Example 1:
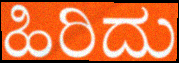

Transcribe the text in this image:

ಹಿರಿದು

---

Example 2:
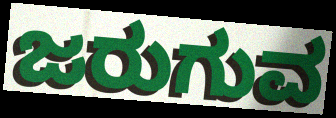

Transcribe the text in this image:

ಜರುಗುವ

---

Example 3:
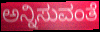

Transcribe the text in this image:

ಅನ್ನಿಸುವಂತೆ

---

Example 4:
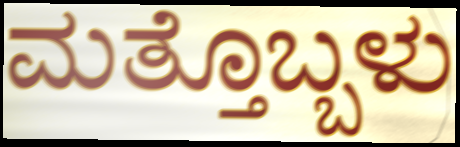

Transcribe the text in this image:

ಮತ್ತೊಬ್ಬಳು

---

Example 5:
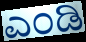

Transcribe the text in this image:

ಎಂಡಿ